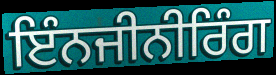
ਇੰਨਜੀਨੀਰਿੰਗ